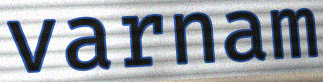
varnam